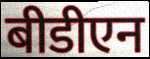
बीडीएन